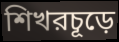
শিখরচূড়ে